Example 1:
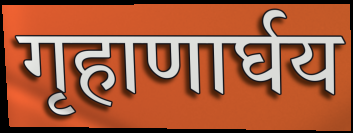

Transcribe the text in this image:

गृहाणार्घय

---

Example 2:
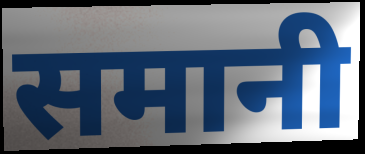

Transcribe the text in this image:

समानी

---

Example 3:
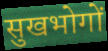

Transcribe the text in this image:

सुखभोगों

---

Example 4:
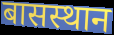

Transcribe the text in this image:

बासस्थान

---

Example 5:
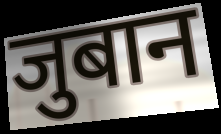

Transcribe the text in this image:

जुबान